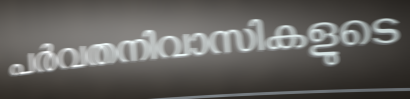
പർവതനിവാസികളുടെ